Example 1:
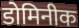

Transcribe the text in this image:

डोमिनीक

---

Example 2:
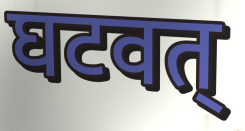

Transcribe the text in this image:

घटवत्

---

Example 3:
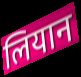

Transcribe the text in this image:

लियान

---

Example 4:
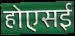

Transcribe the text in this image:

होएसई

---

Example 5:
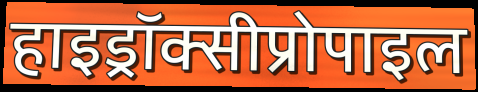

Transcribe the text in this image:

हाइड्रॉक्सीप्रोपाइल